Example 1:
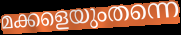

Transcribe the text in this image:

മക്കളെയുംതന്നെ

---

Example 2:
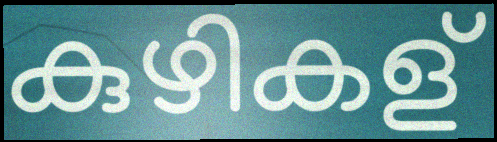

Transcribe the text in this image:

കുഴികള്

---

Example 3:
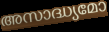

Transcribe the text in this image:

അസാദ്ധ്യമോ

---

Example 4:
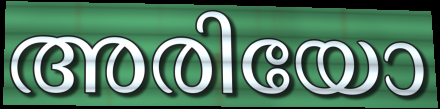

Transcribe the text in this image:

അരിയോ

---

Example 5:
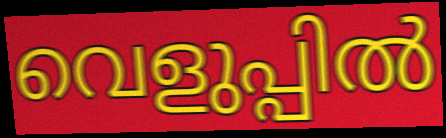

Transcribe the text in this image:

വെളുപ്പിൽ